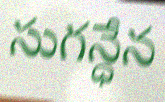
సుగన్ధేన